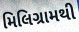
મિલિગ્રામથી